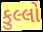
કુલ્લો